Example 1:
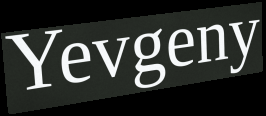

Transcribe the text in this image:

Yevgeny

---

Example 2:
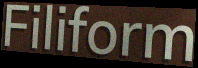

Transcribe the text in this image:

Filiform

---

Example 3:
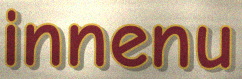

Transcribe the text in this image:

innenu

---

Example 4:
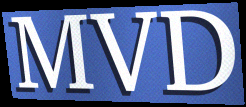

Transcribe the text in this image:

MVD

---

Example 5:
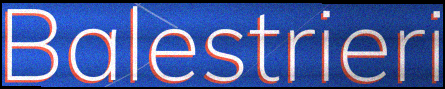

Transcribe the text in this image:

Balestrieri